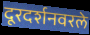
दूरदर्शनवरले